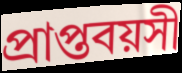
প্রাপ্তবয়সী